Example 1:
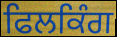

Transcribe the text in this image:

ਫਿਲਕਿੰਗ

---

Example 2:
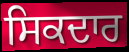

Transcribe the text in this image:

ਸਿਕਦਾਰ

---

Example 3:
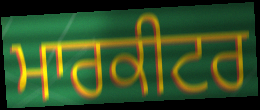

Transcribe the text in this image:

ਮਾਰਕੀਟਰ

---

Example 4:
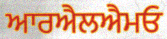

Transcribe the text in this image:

ਆਰਐਲਐਮਓ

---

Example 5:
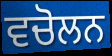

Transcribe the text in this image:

ਵਚੋਲਨ